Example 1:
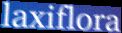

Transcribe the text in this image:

laxiflora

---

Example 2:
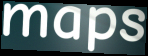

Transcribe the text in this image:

maps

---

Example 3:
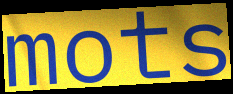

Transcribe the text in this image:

mots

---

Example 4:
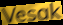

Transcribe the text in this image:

Vesak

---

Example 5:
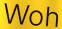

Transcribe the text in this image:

Woh